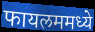
फायलममध्ये